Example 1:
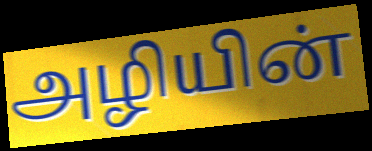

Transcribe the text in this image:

அழியின்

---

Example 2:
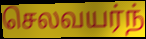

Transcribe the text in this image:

செலவயர்ந்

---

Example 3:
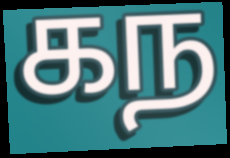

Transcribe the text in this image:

கந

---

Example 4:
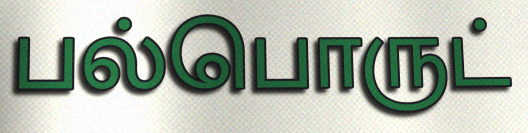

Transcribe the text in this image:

பல்பொருட்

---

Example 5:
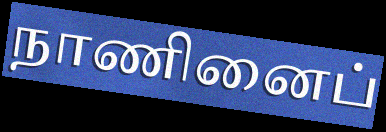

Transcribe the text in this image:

நாணினைப்